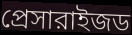
প্রেসারাইজড